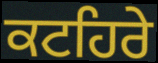
ਕਟਹਿਰੇ